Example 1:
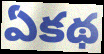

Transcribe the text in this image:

ఏకథ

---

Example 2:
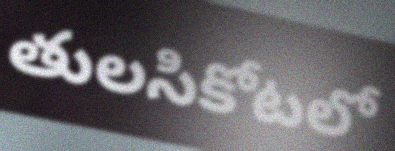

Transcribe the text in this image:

తులసికోటలో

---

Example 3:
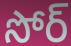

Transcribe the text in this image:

సోర్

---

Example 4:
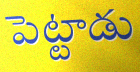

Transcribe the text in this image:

పెట్టాడు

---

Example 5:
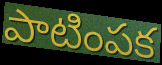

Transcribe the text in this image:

పాటింపక